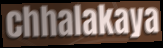
chhalakaya